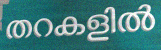
തറകളിൽ